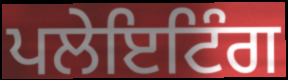
ਪਲੇਇਟਿੰਗ